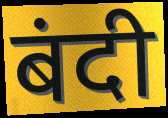
बंदी